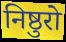
निष्ठुरो